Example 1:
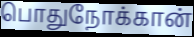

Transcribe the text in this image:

பொதுநோக்கான்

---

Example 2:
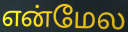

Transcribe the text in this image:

என்மேல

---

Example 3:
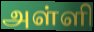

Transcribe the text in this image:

அள்ளி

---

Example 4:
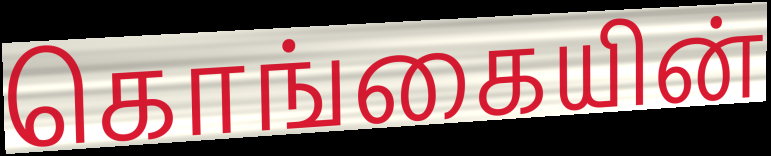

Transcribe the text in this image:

கொங்கையின்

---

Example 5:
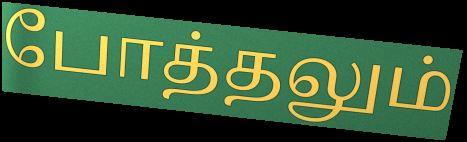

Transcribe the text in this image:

போத்தலும்